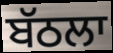
ਬੱਠਲਾ